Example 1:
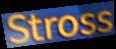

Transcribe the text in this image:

Stross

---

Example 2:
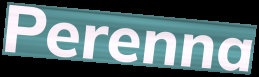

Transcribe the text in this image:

Perenna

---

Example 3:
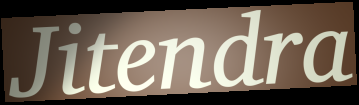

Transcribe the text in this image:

Jitendra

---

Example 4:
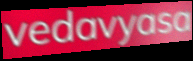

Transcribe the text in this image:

vedavyasa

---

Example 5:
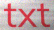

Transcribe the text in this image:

txt